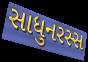
સાધુનરસ્સ